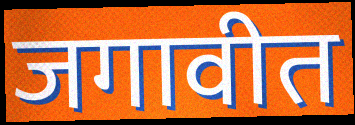
जगावीत